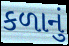
કળાનું